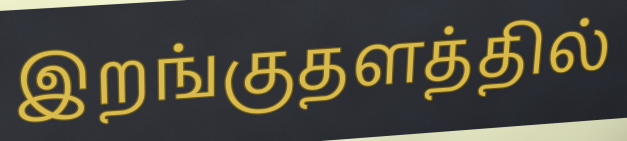
இறங்குதளத்தில்